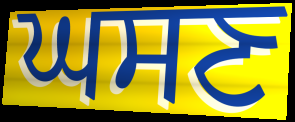
ਘਸਣ